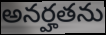
అనర్హతను